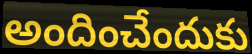
అందించేందుకు